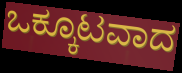
ಒಕ್ಕೂಟವಾದ